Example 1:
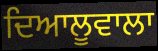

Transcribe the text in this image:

ਦਿਆਲੂਵਾਲਾ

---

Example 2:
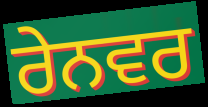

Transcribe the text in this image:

ਰੇਨਵਰ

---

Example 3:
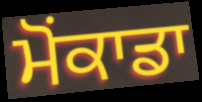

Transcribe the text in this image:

ਮੋਂਕਾਡਾ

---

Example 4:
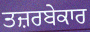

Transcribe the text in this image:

ਤਜ਼ਰਬੇਕਾਰ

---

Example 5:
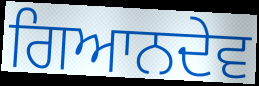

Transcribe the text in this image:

ਗਿਆਨਦੇਵ